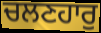
ਚਲਣਹਾਰੁ